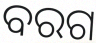
ବରଗ